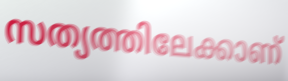
സത്യത്തിലേക്കാണ്